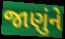
જાણુંને